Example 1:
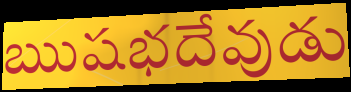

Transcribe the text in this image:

ఋషభదేవుడు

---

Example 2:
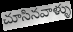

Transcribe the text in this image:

చూసినవాళ్ళు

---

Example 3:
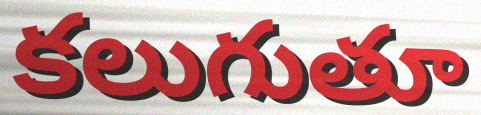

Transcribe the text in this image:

కలుగుతూ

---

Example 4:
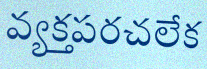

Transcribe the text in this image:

వ్యక్తపరచలేక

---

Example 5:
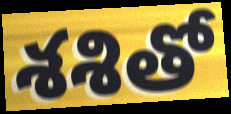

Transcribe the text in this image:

శశితో